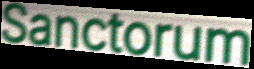
Sanctorum